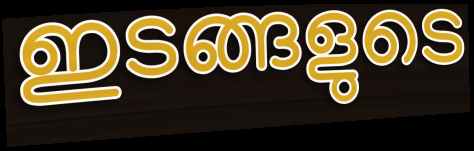
ഇടങ്ങളുടെ